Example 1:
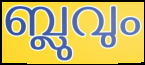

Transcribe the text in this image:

ബ്ലുവും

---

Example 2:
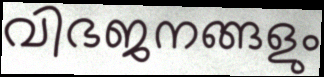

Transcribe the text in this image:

വിഭജനങ്ങളും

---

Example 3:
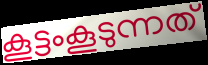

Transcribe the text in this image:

കൂട്ടംകൂടുന്നത്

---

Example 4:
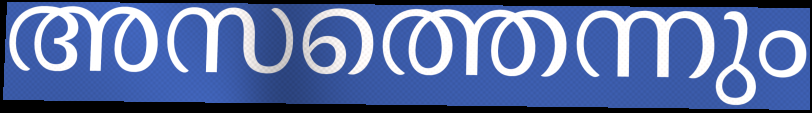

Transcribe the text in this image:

അസത്തെന്നും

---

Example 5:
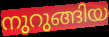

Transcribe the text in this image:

നുറുങ്ങിയ